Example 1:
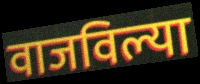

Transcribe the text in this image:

वाजविल्या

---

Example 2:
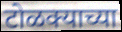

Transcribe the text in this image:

टोळक्याच्या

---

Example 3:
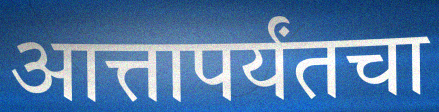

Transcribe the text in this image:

आत्तापर्यंतचा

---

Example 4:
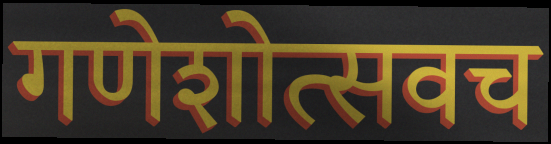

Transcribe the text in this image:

गणेशोत्सवच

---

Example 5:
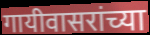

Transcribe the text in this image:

गायीवासरांच्या